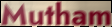
Mutham